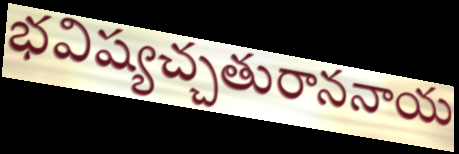
భవిష్యచ్చతురాననాయ